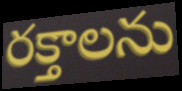
రక్తాలను